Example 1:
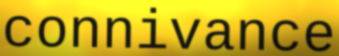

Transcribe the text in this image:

connivance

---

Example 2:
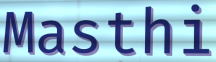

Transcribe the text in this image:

Masthi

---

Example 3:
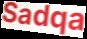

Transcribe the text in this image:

Sadqa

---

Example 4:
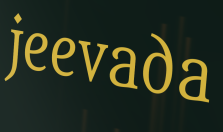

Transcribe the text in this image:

jeevada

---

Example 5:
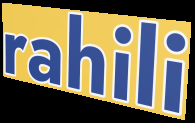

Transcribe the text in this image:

rahili